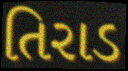
તિરાડ